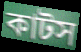
কাটস